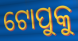
ଟୋପୁକୁ